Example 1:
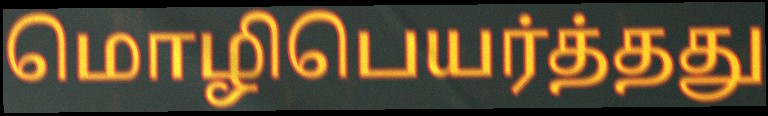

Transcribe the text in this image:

மொழிபெயர்த்தது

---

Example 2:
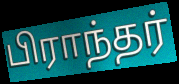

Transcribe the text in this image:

பிராந்தர்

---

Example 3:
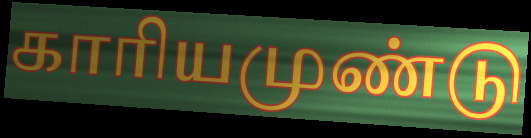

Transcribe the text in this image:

காரியமுண்டு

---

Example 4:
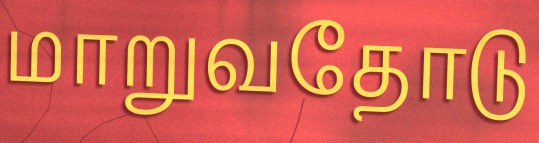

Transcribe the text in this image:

மாறுவதோடு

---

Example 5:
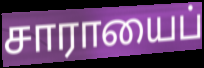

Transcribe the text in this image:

சாராயைப்